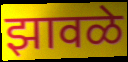
झावळे